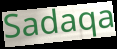
Sadaqa